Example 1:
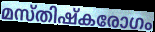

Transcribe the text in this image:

മസ്തിഷ്കരോഗം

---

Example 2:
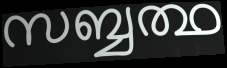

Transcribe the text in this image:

സബ്ബത്ഥ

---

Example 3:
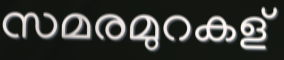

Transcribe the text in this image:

സമരമുറകള്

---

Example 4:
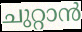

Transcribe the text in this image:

ചുറ്റാൻ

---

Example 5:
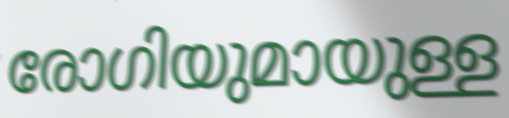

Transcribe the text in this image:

രോഗിയുമായുള്ള